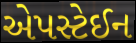
એપસ્ટેઈન